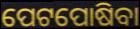
ପେଟପୋଷିବା